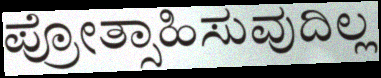
ಪ್ರೋತ್ಸಾಹಿಸುವುದಿಲ್ಲ